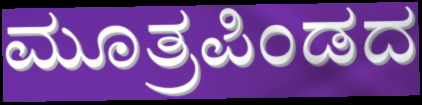
ಮೂತ್ರಪಿಂಡದ